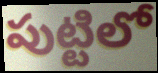
పుట్టిలో